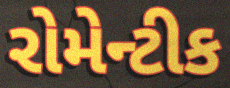
રોમેન્ટીક